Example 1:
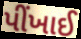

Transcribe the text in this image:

પીંખાઈ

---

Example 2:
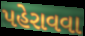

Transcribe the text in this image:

પહેરાવવા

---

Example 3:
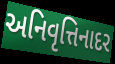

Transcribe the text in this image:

અનિવૃત્તિનાદર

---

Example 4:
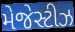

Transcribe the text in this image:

મેજેસ્ટીઝ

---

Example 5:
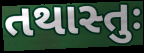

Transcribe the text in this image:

તથાસ્તુઃ